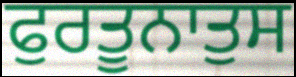
ਫੁਰਤੂਨਾਤੁਸ